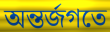
অন্তর্জগতে